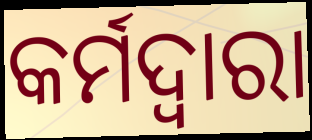
କର୍ମଦ୍ବାରା